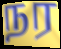
நர